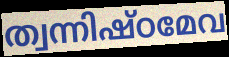
ത്വന്നിഷ്ഠമേവ